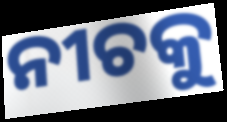
ନୀଚକୁ